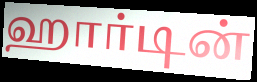
ஹார்டின்